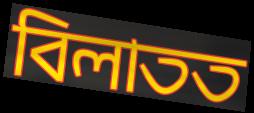
বিলাতত